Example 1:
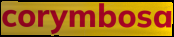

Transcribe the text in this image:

corymbosa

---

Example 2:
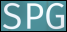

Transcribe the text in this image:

SPG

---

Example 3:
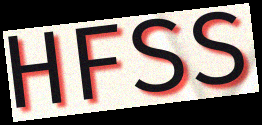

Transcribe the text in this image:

HFSS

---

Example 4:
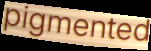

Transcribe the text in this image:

pigmented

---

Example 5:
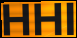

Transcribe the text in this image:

HHI